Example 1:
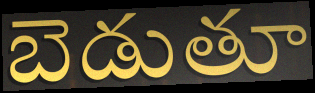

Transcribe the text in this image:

బెడుతూ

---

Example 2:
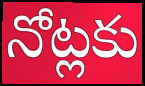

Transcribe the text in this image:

నోట్లకు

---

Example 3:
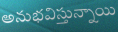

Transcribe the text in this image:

అనుభవిస్తున్నాయి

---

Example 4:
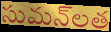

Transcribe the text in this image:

సుమన్‌లత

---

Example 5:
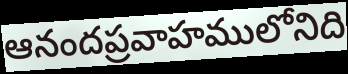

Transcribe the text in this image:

ఆనందప్రవాహములోనిది